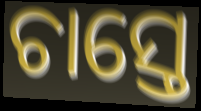
ଚାସ୍ତେ